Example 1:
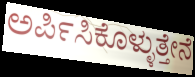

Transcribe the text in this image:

ಅರ್ಪಿಸಿಕೊಳ್ಳುತ್ತೇನೆ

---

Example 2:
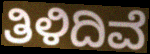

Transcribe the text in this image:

ತಿಳಿದಿವೆ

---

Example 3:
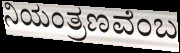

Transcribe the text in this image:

ನಿಯಂತ್ರಣವೆಂಬ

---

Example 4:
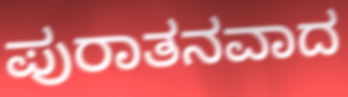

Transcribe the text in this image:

ಪುರಾತನವಾದ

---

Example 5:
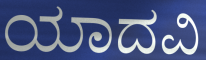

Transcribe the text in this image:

ಯಾದವಿ